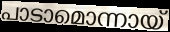
പാടാമൊന്നായ്